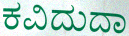
ಕವಿದುದಾ